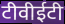
टीवीईटी